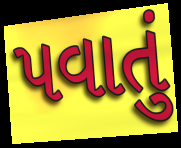
પવાતું